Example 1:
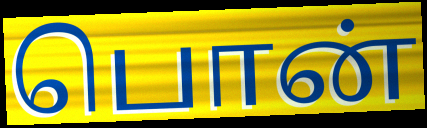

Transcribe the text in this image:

பொன்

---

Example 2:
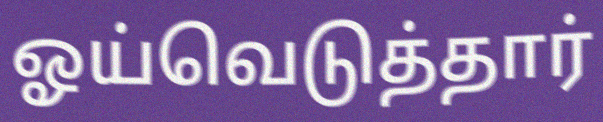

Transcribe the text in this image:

ஓய்வெடுத்தார்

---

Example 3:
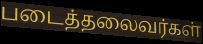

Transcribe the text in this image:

படைத்தலைவர்கள்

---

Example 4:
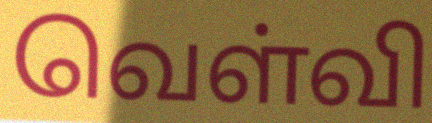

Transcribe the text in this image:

வெள்வி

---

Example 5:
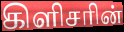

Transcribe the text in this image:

கிளிசரின்